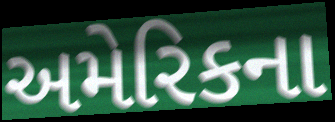
અમેરિકના